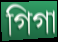
গিগা